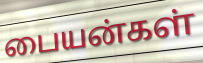
பையன்கள்